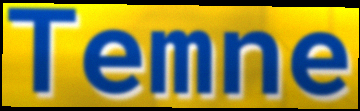
Temne